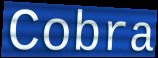
Cobra